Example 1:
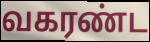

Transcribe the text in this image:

வகரண்ட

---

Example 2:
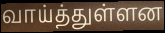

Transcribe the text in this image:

வாய்த்துள்ளன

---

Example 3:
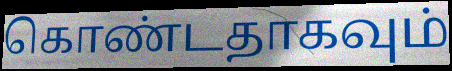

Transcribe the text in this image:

கொண்டதாகவும்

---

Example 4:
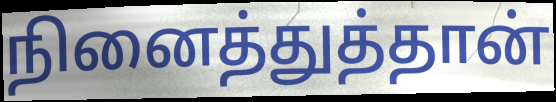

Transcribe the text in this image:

நினைத்துத்தான்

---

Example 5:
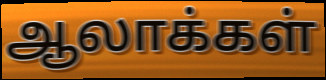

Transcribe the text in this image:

ஆலாக்கள்